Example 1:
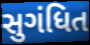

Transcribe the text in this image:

સુગંધિત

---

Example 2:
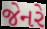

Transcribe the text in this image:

જેનરે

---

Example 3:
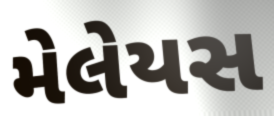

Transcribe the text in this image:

મેલેયસ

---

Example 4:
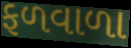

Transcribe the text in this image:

ફળવાળા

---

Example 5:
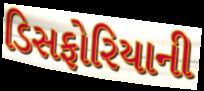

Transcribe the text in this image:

ડિસફોરિયાની